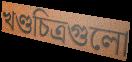
খণ্ডচিত্রগুলো